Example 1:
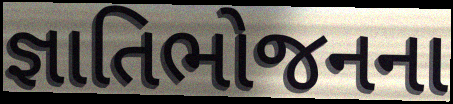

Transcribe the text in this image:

જ્ઞાતિભોજનના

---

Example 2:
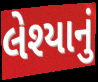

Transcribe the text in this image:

લેશ્યાનું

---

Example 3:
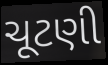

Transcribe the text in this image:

ચૂટણી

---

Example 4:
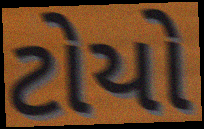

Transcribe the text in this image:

ટોયો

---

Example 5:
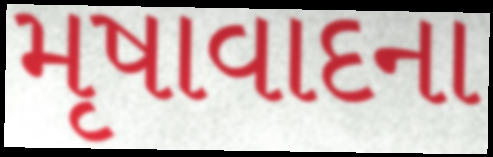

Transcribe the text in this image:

મૃષાવાદના